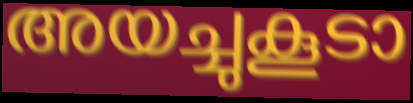
അയച്ചുകൂടാ